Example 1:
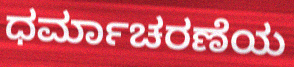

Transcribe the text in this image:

ಧರ್ಮಾಚರಣೆಯ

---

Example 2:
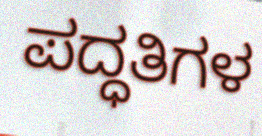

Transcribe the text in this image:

ಪದ್ಧತಿಗಳ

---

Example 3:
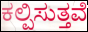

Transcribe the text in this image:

ಕಲ್ಪಿಸುತ್ತವೆ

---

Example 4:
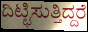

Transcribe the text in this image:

ದಿಟ್ಟಿಸುತ್ತಿದ್ದರೆ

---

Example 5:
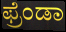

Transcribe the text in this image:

ಫ್ರೆಂಡಾ